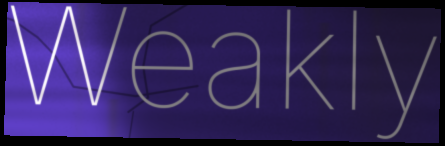
Weakly